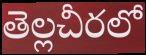
తెల్లచీరలో